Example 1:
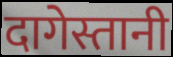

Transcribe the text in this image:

दागेस्तानी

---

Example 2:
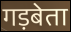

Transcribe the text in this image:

गड़बेता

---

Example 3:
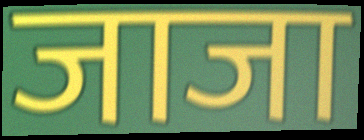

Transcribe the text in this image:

जाजा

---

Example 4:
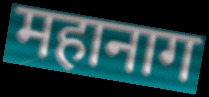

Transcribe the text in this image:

महानाग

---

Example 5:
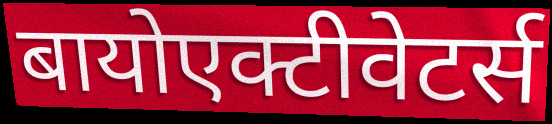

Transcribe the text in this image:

बायोएक्टीवेटर्स